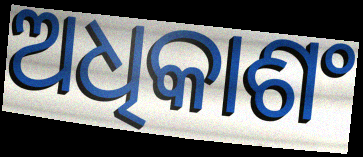
ଅଧିକାଶଂ